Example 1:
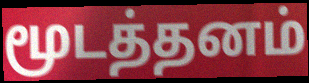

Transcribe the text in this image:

மூடத்தனம்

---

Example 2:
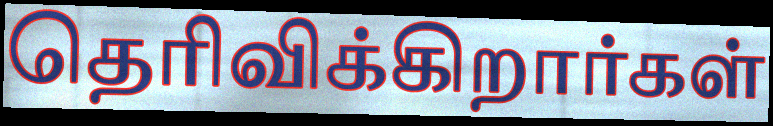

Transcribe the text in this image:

தெரிவிக்கிறார்கள்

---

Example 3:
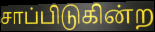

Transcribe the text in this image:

சாப்பிடுகின்ற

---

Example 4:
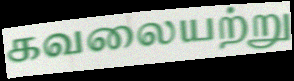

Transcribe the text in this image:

கவலையற்று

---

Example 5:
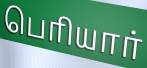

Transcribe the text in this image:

பெரியார்